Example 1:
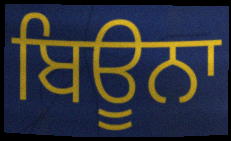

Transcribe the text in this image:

ਬਿਊਨਾ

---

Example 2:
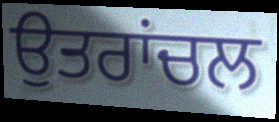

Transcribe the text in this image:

ਉਤਰਾਂਚਲ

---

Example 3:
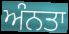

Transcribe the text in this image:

ਅੰਨਤਾ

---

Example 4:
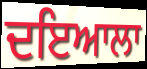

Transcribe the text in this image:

ਦਇਆਲਾ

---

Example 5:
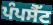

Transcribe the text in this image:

ਪੰਪਸੈੱਟ